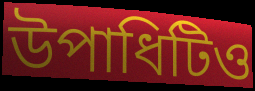
উপাধিটিও